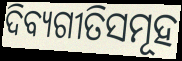
ଦିବ୍ୟଗୀତିସମୂହ